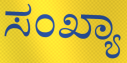
ಸಂಖ್ಯಾ